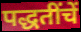
पद्धतींचें